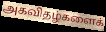
அகவிதழ்களைக்